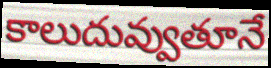
కాలుదువ్వుతూనే